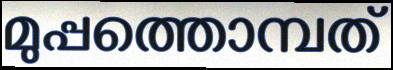
മുപ്പത്തൊമ്പത്